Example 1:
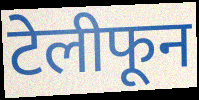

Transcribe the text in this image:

टेलीफून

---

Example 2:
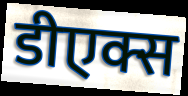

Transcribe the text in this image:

डीएक्स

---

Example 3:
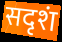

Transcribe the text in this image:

सदृशं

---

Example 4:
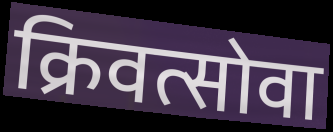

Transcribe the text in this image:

क्रिवत्सोवा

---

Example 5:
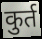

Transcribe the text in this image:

कुर्त